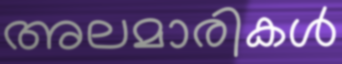
അലമാരികൾ